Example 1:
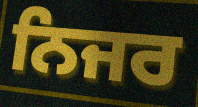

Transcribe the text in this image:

ਨਿਜਰ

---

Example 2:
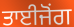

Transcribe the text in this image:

ਤਾਈਜੋਂਗ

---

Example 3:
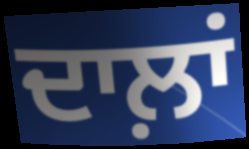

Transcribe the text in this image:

ਦਾਲ਼ਾਂ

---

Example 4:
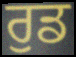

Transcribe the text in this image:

ਰੁਡ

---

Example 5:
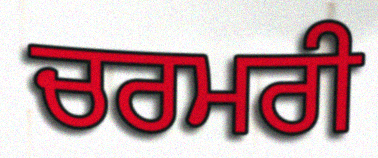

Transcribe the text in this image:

ਚਰਮਰੀ